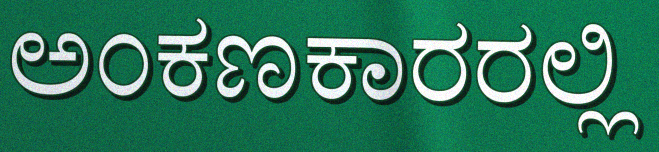
ಅಂಕಣಕಾರರಲ್ಲಿ